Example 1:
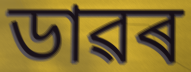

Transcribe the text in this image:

ডাৱৰ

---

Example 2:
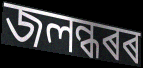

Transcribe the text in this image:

জলন্ধৰৰ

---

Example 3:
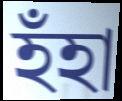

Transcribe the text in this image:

হঁহা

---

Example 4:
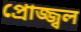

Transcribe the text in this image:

প্ৰোজ্জ্বল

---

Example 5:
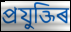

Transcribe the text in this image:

প্ৰযুক্তিৰ